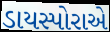
ડાયસ્પોરાએ